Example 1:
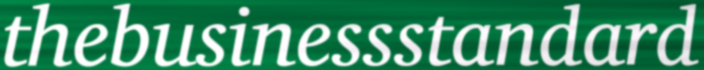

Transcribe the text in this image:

thebusinessstandard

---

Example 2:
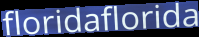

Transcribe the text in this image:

floridaflorida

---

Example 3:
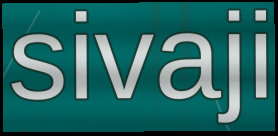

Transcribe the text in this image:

sivaji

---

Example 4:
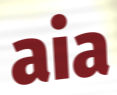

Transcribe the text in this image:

aia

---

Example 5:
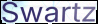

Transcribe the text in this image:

Swartz